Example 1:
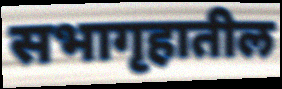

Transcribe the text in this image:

सभागृहातील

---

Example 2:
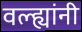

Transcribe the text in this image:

वल्ह्यांनी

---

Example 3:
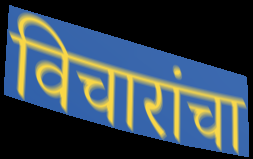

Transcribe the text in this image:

विचारांचा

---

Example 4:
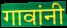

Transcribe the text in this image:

गावांनी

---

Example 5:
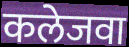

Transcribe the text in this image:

कलेजवा